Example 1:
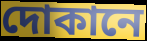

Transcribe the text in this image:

দোকানে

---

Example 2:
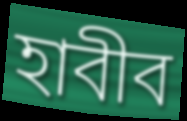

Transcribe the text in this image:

হাবীব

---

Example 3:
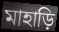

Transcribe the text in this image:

মাহাড়ি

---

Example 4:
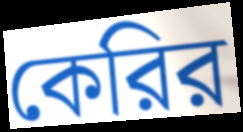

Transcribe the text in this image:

কেরির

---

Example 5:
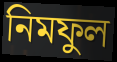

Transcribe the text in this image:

নিমফুল